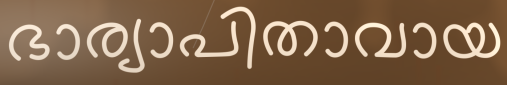
ഭാര്യാപിതാവായ